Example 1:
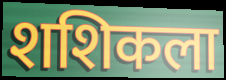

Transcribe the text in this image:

शशिकला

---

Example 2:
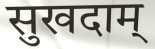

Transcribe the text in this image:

सुखदाम्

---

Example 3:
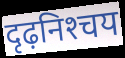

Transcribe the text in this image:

दृढ़निश्चय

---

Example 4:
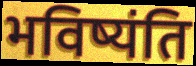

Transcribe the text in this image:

भविष्यंति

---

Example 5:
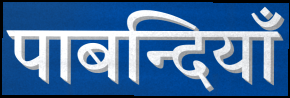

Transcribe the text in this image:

पाबन्दियाँ